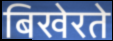
बिखेरते